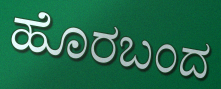
ಹೊರಬಂದ